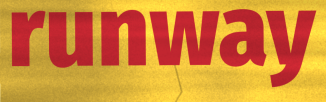
runway